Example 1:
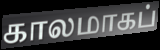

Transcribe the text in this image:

காலமாகப்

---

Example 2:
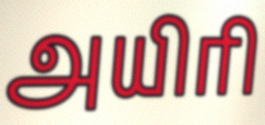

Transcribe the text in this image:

அயிரி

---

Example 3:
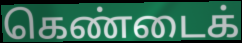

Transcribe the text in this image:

கெண்டைக்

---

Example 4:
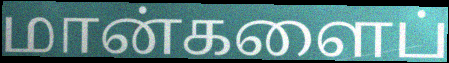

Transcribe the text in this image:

மான்களைப்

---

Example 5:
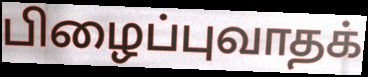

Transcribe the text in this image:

பிழைப்புவாதக்